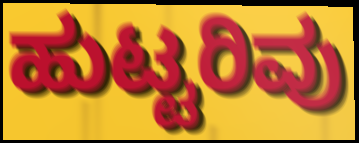
ಹುಟ್ಟರಿವು